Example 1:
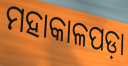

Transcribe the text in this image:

ମହାକାଳପଡ଼ା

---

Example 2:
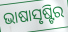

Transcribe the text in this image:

ଭାଷାସୃଷ୍ଟିର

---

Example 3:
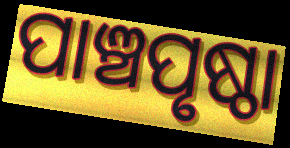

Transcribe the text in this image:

ପାଞ୍ଚପୃଷ୍ଠା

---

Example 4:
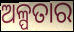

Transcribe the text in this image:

ଅଳ୍ପତାର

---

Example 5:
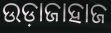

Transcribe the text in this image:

ଉଡ଼ାଜାହାଜ